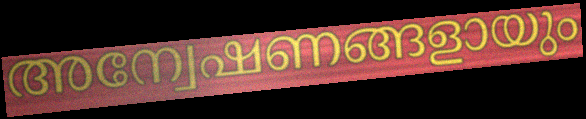
അന്വേഷണങ്ങളായും